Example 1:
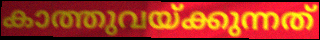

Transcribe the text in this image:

കാത്തുവയ്ക്കുന്നത്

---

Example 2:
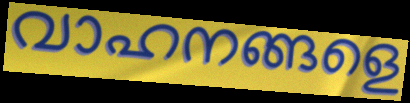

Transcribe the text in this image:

വാഹനങ്ങളെ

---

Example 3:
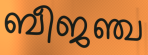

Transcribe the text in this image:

ബീജഞ്ച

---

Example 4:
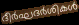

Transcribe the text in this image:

ദീർഘദർശികൾ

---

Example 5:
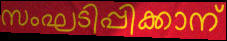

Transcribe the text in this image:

സംഘടിപ്പിക്കാന്